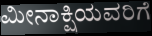
ಮೀನಾಕ್ಷಿಯವರಿಗೆ